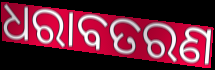
ଧରାବତରଣ